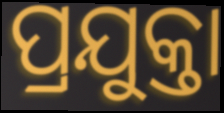
ପ୍ରଯୁକ୍ତା